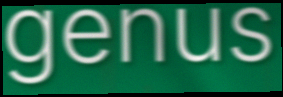
genus